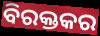
ବିରକ୍ତକର